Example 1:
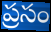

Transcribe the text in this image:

ప్రసం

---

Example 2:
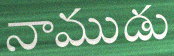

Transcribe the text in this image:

నాముడు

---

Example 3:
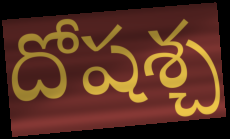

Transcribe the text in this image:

దోషశ్చ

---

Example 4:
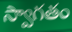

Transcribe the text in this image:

స్వాగతం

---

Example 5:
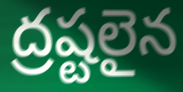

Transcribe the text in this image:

ద్రష్టలైన